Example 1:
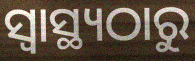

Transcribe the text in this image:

ସ୍ବାସ୍ଥ୍ୟଠାରୁ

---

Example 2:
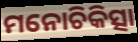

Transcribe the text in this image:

ମନୋଚିକିତ୍ସା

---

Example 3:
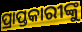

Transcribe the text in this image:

ପ୍ରାପ୍ତକାରୀଙ୍କୁ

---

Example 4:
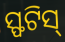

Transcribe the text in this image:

ସ୍ଫଟିସ୍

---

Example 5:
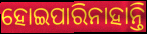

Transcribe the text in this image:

ହୋଇପାରିନାହାନ୍ତି